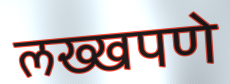
लख्खपणे